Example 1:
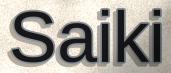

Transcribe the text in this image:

Saiki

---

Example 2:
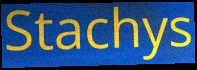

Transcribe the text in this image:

Stachys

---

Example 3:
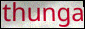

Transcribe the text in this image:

thunga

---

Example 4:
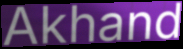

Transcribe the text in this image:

Akhand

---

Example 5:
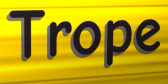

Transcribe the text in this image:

Trope